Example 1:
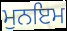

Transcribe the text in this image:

ਮੁਨਇਮ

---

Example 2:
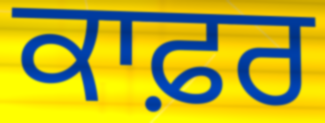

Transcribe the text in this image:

ਕਾਫ਼ਰ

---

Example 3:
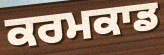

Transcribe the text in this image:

ਕਰਮਕਾਡ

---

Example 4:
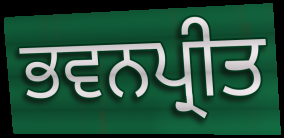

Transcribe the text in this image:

ਭਵਨਪ੍ਰੀਤ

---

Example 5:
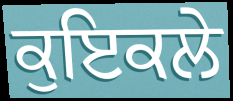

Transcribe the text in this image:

ਕੁਇਕਲੇ